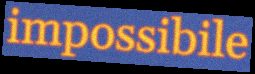
impossibile